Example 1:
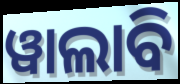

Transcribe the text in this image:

ୱାଲାବି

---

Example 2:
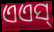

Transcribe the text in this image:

ଏଏସ୍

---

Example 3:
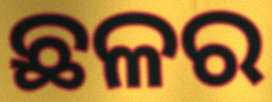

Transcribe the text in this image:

ଛଳର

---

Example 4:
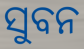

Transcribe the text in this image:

ସୁବନ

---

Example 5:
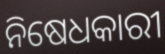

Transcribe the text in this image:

ନିଷେଧକାରୀ